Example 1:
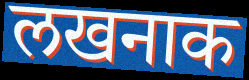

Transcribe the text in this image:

लखनाक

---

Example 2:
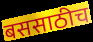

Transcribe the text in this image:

बससाठीच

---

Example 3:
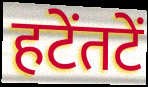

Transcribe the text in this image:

हटेंतटें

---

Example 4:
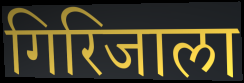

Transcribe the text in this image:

गिरिजाला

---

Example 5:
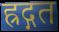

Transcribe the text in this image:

ह्रद्गत